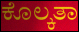
ಕೊಲ್ಕತಾ